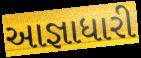
આજ્ઞાધારી